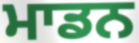
ਮਾਡਨ